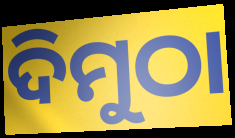
ଦିମୁଠା